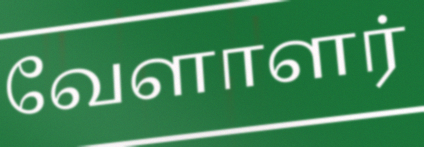
வேளாளர்